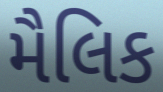
મૈલિક